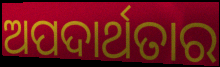
ଅପଦାର୍ଥତାର